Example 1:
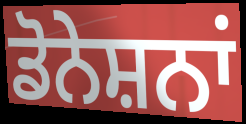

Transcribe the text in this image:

ਡੋਨੇਸ਼ਨਾਂ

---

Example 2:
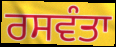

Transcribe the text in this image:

ਰਸਵੰਤਾ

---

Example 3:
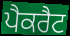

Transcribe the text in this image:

ਪੈਕਰੈਟ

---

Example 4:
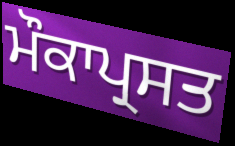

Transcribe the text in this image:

ਮੌਕਾਪ੍ਰਸਤ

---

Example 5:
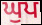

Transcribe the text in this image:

ਘੁਪ